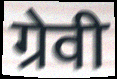
ग्रेवी